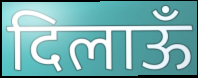
दिलाऊँ